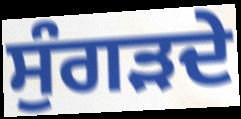
ਸੁੰਗੜਦੇ